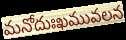
మనోదుఃఖమువలన